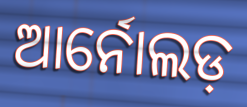
ଆର୍ନୋଲଡ଼